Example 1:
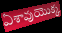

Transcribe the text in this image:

ఏశావుయొక్క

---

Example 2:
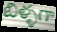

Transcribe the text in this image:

బిళ్ళగా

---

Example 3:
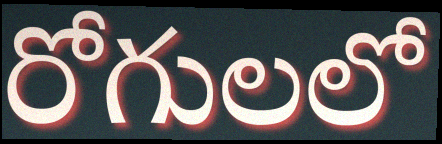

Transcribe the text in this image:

రోగులలో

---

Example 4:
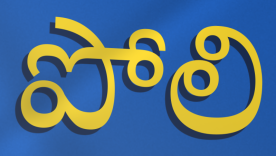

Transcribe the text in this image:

పోలి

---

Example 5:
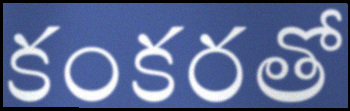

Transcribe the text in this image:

కంకరతో